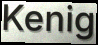
Kenig